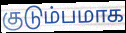
குடும்பமாக